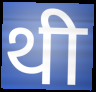
थी